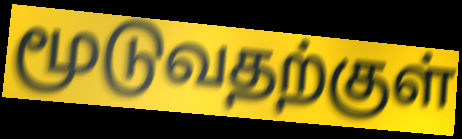
மூடுவதற்குள்